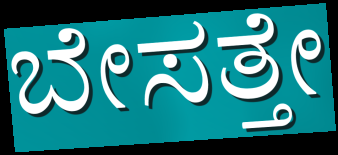
ಬೇಸತ್ತೇ